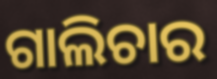
ଗାଲିଚାର